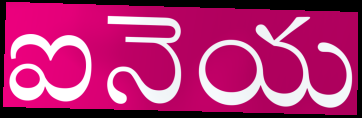
ఐనెయ